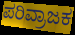
ಪರಿವ್ರಾಜಕ